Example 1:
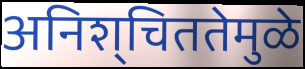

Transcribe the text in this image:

अनिश्चिततेमुळे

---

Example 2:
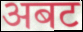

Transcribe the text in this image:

अबट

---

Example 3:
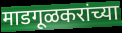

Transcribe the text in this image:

माडगूळकरांच्या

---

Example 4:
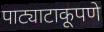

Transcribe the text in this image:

पाट्याटाकूपणे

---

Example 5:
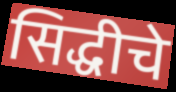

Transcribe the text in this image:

सिद्धीचे